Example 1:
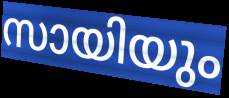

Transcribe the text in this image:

സായിയും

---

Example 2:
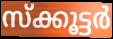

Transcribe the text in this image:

സ്ക്കൂട്ടർ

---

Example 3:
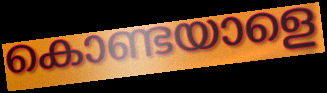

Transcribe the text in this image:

കൊണ്ടയാളെ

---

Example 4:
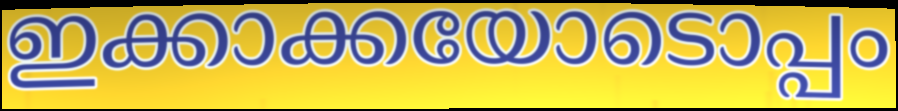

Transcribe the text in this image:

ഇക്കാക്കയോടൊപ്പം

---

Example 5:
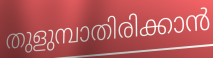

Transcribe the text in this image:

തുളുമ്പാതിരിക്കാൻ